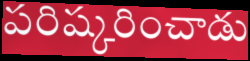
పరిష్కరించాడు